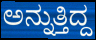
ಅನ್ನುತ್ತಿದ್ದ